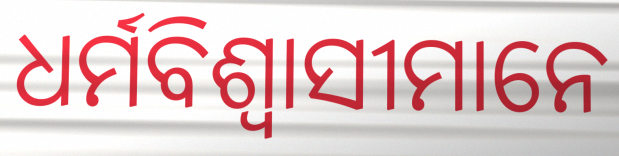
ଧର୍ମବିଶ୍ଵାସୀମାନେ